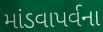
માંડવાપર્વના